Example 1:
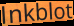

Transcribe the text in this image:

Inkblot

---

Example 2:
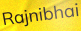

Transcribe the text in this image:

Rajnibhai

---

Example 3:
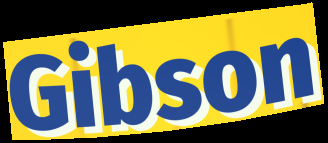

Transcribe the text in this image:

Gibson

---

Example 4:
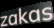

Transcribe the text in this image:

zakas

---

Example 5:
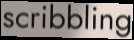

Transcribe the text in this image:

scribbling